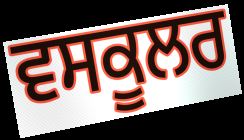
ਵਸਕੂਲਰ